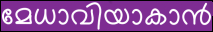
മേധാവിയാകാൻ